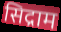
सिद्राम